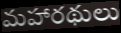
మహారథులు